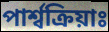
পাৰ্শ্বক্ৰিয়াঃ